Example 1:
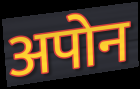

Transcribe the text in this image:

अपोन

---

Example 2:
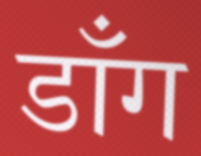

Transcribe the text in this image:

डाँग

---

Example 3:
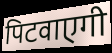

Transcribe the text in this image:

पिटवाएगी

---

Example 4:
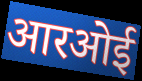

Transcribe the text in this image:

आरओई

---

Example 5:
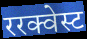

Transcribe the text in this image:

ररक्वेस्ट